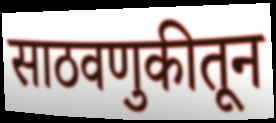
साठवणुकीतून